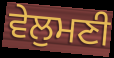
ਵੇਲੁਮਣੀ